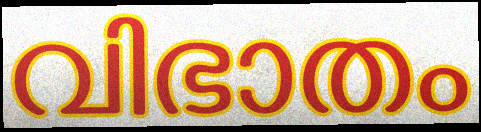
വിഭാതം